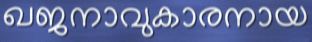
ഖജനാവുകാരനായ